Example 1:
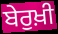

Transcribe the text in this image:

ਬੇਰੁਖ਼ੀ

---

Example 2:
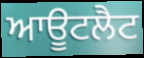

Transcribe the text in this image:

ਆਊਟਲੈਟ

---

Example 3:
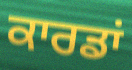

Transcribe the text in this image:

ਕਾਰਡਾਂ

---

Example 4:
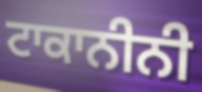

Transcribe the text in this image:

ਟਾਕਾਨੀਨੀ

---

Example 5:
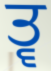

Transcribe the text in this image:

ਤ੍ਵ